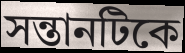
সন্তানটিকে